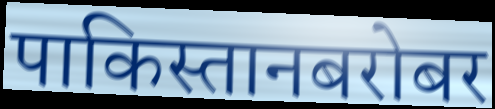
पाकिस्तानबरोबर